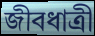
জীবধাত্রী